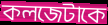
কলজেটাকে